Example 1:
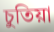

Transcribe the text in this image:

চুতিয়া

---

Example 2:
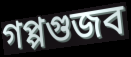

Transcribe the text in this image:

গপ্পগুজব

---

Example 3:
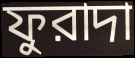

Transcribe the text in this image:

ফুরাদা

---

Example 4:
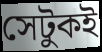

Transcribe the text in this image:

সেটুকই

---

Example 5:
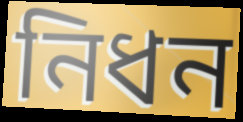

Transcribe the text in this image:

নিধন